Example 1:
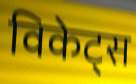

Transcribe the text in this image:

विकेट्स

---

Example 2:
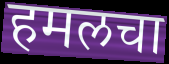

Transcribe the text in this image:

हमलचा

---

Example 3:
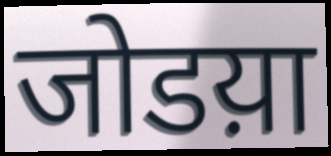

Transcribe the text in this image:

जोडय़ा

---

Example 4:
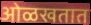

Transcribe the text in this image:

ओळखतात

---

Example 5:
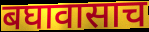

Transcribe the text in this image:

बघावासाच